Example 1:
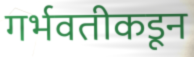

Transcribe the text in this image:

गर्भवतीकडून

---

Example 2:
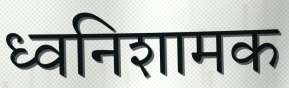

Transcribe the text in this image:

ध्वनिशामक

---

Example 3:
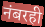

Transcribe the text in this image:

नंबरही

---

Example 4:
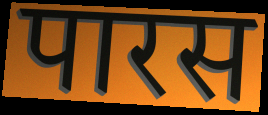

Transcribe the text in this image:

पारस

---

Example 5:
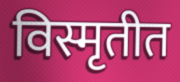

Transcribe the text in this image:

विस्मृतीत